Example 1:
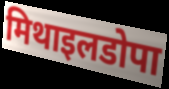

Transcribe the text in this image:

मिथाइलडोपा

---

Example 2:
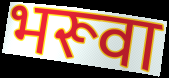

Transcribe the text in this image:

भरूवा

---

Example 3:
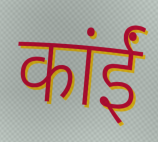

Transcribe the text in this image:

कांईं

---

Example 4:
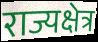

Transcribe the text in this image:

राज्यक्षेत्र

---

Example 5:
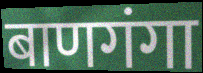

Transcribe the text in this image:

बाणगंगा